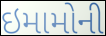
ઇમામોની